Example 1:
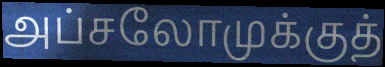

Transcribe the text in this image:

அப்சலோமுக்குத்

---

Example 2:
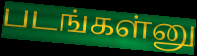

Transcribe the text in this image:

படங்கள்னு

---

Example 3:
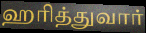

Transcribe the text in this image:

ஹரித்துவார்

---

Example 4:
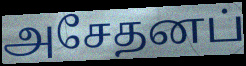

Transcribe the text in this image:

அசேதனப்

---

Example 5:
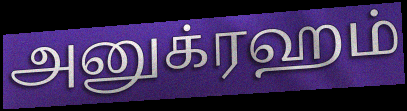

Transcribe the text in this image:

அனுக்ரஹம்